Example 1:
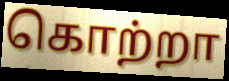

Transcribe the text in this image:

கொற்றா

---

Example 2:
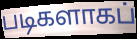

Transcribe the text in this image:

படிகளாகப்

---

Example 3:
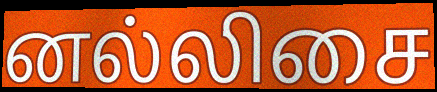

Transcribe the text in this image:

னல்லிசை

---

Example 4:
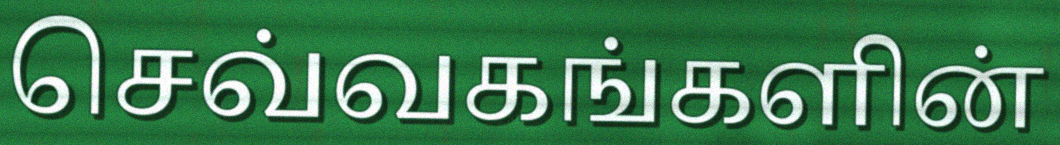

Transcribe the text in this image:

செவ்வகங்களின்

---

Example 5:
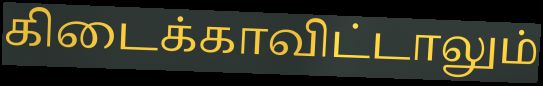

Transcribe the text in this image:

கிடைக்காவிட்டாலும்